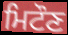
ਮਿਟੌਣ